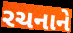
રચનાને